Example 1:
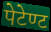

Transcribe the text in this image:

पेटेण्ट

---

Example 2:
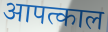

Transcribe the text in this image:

आपत्काल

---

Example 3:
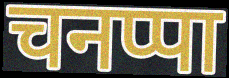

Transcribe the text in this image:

चनप्पा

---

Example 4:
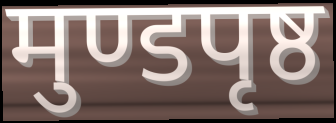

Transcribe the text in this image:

मुण्डपृष्ठ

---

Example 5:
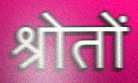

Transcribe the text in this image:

श्रोतों